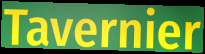
Tavernier